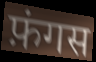
फ़ंगस